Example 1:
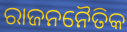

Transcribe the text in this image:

ରାଜନନୈତିକ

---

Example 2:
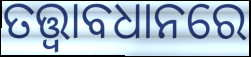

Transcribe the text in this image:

ତତ୍ତ୍ବାବଧାନରେ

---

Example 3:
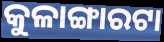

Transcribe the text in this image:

କୁଳାଙ୍ଗାରଟା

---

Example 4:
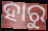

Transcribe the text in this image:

ହାରୁ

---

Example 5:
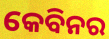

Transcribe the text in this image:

କେବିନର